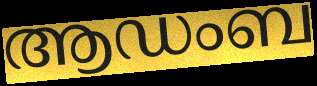
ആഡംബ